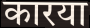
कारया